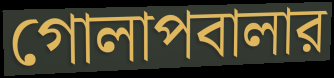
গোলাপবালার